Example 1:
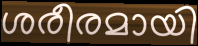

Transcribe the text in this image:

ശരീരമായി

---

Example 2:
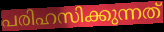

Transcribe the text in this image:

പരിഹസിക്കുന്നത്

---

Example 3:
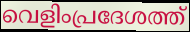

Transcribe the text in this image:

വെളിംപ്രദേശത്ത്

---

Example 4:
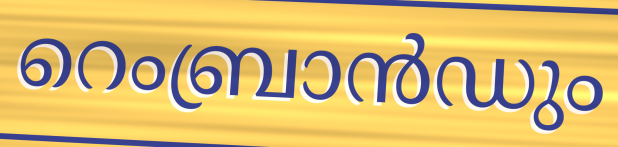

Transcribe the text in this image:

റെംബ്രാൻഡും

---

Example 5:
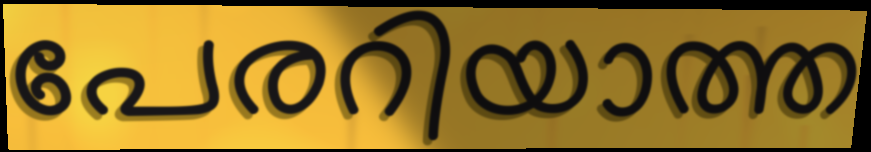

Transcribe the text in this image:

പേരറിയാത്ത